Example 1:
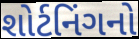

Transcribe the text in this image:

શોર્ટનિંગનો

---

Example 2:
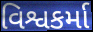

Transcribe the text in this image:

વિશ્વકર્મા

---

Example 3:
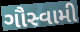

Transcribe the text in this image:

ગૌસ્વામી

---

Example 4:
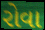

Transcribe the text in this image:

રોવા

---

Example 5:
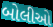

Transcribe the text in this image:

બોલીઓ